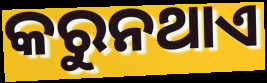
କରୁନଥାଏ